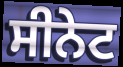
ਸੀਨੇਟ